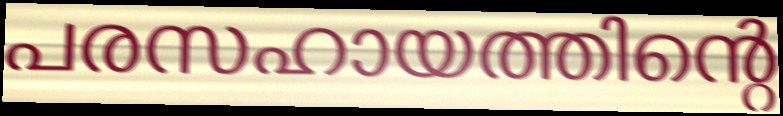
പരസഹായത്തിന്റെ